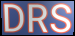
DRS